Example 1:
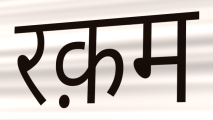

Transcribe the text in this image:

रक़म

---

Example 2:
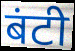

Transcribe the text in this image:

बंटी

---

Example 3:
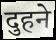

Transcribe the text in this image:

दुहने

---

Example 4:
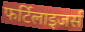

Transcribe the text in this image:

फर्टिलाइजर्स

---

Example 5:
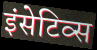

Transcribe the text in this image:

इंसेटिव्स